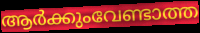
ആർക്കുംവേണ്ടാത്ത